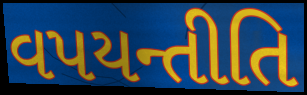
વપયન્તીતિ